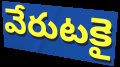
వేరుటకై